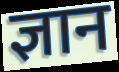
ज्ञान